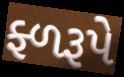
ફ્ળરૂપે